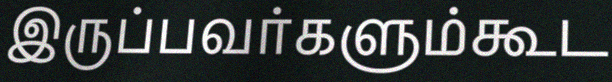
இருப்பவர்களும்கூட